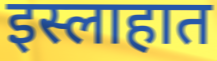
इस्लाहात